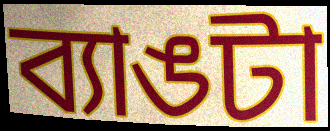
ব্যাঙটা